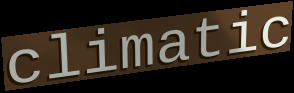
climatic